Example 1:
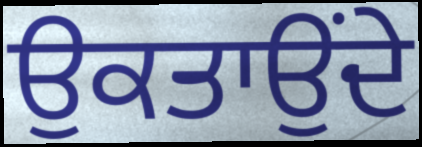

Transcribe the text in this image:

ਉਕਤਾਉਂਦੇ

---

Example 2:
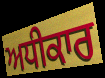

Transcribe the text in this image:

ਅਧੀਕਾਰ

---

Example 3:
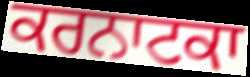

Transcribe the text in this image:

ਕਰਨਾਟਕਾ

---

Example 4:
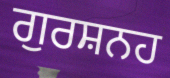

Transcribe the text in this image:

ਗੁਰਸ਼ਨਹ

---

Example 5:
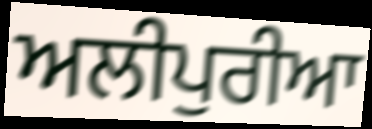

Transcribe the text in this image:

ਅਲੀਪੁਰੀਆ